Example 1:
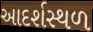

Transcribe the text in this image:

આદર્શસ્થળ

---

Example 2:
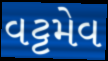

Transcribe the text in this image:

વટ્ટમેવ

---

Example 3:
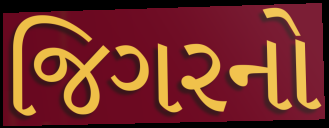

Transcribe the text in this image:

જિગરનો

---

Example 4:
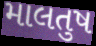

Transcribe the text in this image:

માલતુષ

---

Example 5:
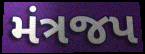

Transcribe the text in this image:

મંત્રજપ